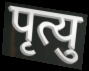
पृत्यु